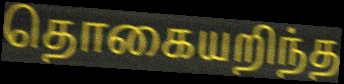
தொகையறிந்த